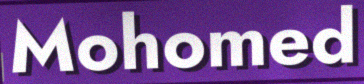
Mohomed